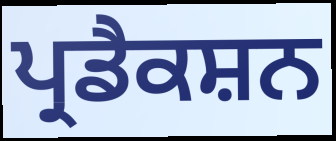
ਪ੍ਰਡੈਕਸ਼ਨ